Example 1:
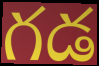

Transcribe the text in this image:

గడ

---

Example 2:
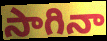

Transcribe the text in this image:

సాగినా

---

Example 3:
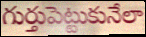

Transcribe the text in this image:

గుర్తుపెట్టుకునేలా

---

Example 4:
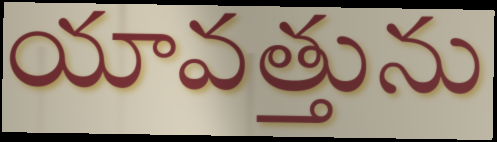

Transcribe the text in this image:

యావత్తును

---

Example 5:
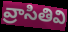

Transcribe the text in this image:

వ్రాసితివి